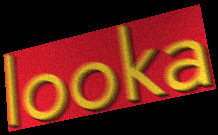
looka